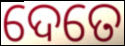
ଦେତେ